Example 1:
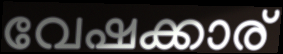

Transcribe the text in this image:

വേഷക്കാര്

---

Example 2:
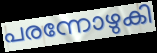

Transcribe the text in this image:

പരന്നോഴുകി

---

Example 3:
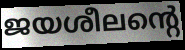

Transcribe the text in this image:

ജയശീലന്റെ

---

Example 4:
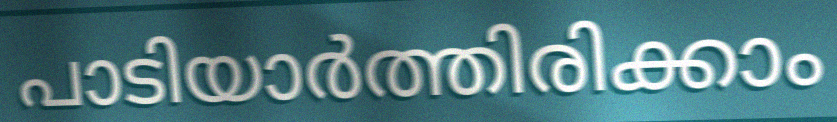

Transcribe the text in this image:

പാടിയാർത്തിരിക്കാം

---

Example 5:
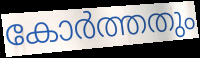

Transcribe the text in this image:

കോർത്തതും